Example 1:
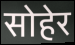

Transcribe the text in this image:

सोहेर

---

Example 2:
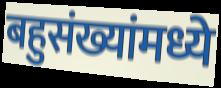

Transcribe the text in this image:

बहुसंख्यांमध्ये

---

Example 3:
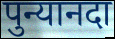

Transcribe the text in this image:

पुन्यानदा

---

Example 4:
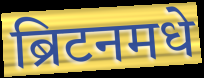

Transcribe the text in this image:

ब्रिटनमधे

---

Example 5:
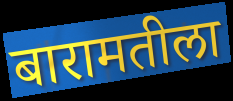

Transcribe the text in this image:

बारामतीला